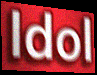
Idol